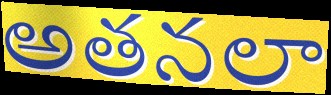
అతనలా